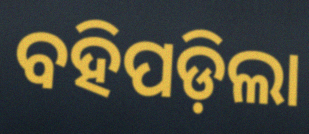
ବହିପଡ଼ିଲା